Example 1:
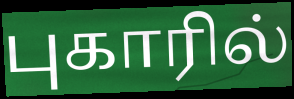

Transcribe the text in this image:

புகாரில்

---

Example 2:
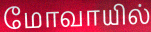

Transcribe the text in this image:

மோவாயில்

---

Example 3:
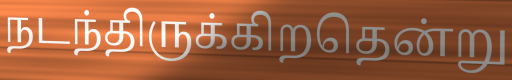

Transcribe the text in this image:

நடந்திருக்கிறதென்று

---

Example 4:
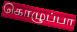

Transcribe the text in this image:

கொழுப்பா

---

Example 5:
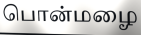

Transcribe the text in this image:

பொன்மழை